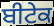
ਬੀਟੇਕ